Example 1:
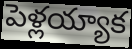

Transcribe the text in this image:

పెళ్లయ్యాక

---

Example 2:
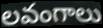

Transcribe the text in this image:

లవంగాలు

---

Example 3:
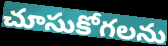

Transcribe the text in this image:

చూసుకోగలను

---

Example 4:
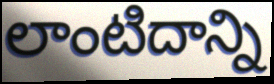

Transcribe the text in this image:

లాంటిదాన్ని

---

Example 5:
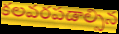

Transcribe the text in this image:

కలవరపడాల్సిన